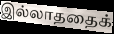
இல்லாததைக்